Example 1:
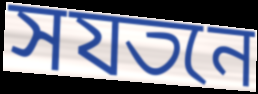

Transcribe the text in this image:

সযতনে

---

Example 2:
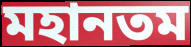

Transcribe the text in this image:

মহানতম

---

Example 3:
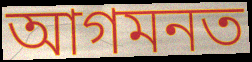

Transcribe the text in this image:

আগমনত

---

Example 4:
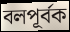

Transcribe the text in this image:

বলপূৰ্বক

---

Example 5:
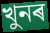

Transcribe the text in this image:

খুনৰ